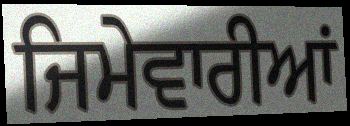
ਜਿਮੇਵਾਰੀਆਂ